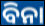
ବିନା